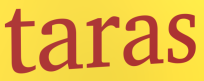
taras